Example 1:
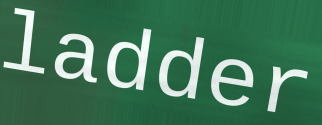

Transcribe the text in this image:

ladder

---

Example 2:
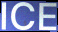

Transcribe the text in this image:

ICE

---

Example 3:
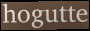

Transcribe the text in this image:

hogutte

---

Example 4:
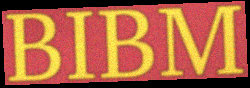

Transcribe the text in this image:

BIBM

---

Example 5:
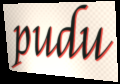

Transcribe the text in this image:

pudu